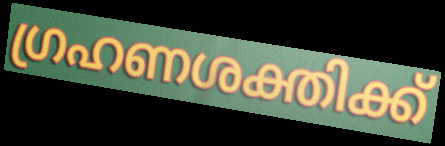
ഗ്രഹണശക്തിക്ക്